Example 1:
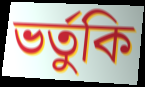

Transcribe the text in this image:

ভর্তুকি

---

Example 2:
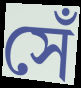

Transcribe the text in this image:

সেঁ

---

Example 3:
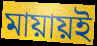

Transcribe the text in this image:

মায়ায়ই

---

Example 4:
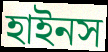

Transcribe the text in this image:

হাইনস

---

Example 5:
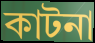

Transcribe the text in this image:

কাটনা